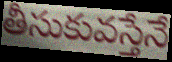
తీసుకువస్తేనే